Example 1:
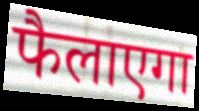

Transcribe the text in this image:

फैलाएगा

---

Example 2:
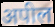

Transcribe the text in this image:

अपील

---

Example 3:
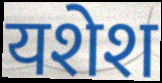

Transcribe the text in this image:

यशेश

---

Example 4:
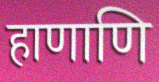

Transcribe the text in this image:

हाणाणि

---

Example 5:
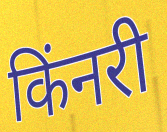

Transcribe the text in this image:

किंनरी